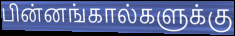
பின்னங்கால்களுக்கு